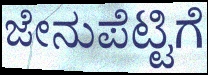
ಜೇನುಪೆಟ್ಟಿಗೆ